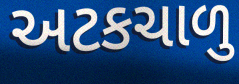
અટકચાળુ